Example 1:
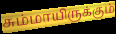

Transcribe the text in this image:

சும்மாயிருக்கும்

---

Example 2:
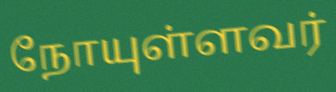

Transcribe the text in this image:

நோயுள்ளவர்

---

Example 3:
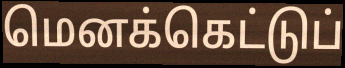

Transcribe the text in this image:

மெனக்கெட்டுப்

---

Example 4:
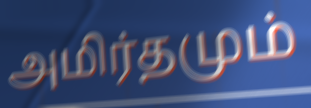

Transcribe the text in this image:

அமிர்தமும்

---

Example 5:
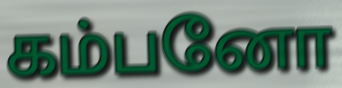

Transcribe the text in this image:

கம்பனோ